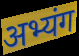
अभ्यंग